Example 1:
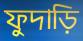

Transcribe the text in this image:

ফুদাড়ি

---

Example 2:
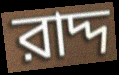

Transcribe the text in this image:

রাদ্দ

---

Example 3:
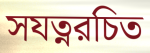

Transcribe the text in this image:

সযত্নরচিত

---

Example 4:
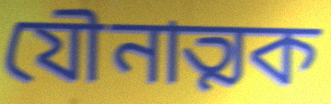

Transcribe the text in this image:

যৌনাত্মক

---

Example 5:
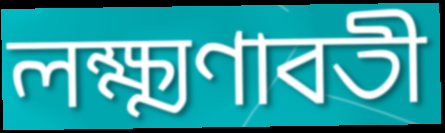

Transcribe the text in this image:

লক্ষ্মণাবতী